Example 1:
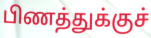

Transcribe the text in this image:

பிணத்துக்குச்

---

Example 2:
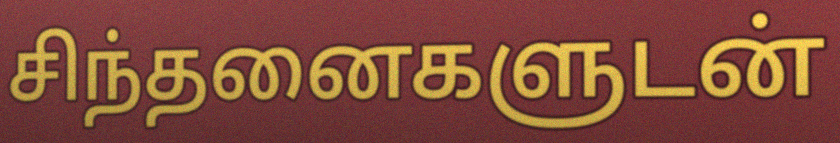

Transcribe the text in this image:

சிந்தனைகளுடன்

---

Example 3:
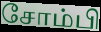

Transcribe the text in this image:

சோம்பி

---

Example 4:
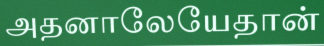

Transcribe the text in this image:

அதனாலேயேதான்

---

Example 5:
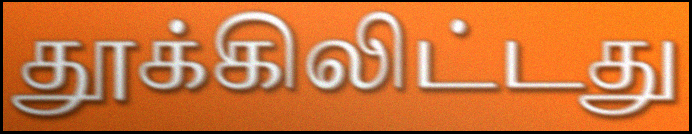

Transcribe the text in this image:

தூக்கிலிட்டது